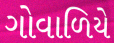
ગોવાળિયે